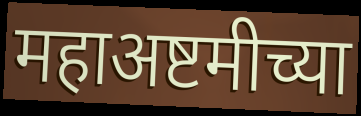
महाअष्टमीच्या